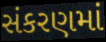
સંકરણમાં